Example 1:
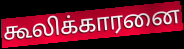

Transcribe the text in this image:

கூலிக்காரனை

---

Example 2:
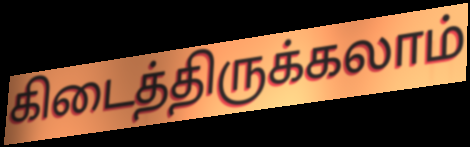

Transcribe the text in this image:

கிடைத்திருக்கலாம்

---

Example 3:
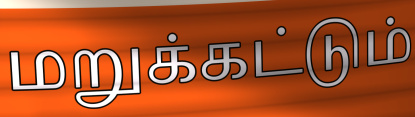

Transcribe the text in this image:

மறுக்கட்டும்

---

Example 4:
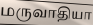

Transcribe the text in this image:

மருவாதியா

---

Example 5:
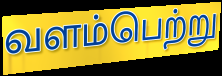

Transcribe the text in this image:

வளம்பெற்று